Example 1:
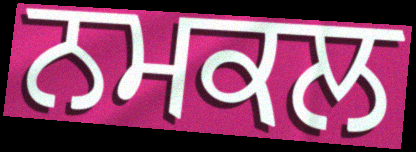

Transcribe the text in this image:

ਨਮਕਲ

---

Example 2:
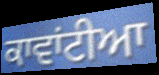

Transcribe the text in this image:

ਕਾਵਾਂਟੀਆ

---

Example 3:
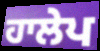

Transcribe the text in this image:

ਹਾਲੇਪ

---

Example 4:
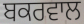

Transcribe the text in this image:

ਬਕਰਵਾਲ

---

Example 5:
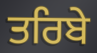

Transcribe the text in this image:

ਤਰਿਬੇ